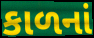
કાળનાં